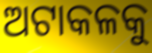
ଅଟାକଳକୁ